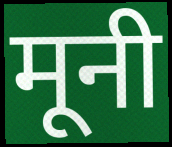
मूनी